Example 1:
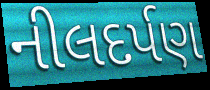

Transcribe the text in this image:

નીલદર્પણ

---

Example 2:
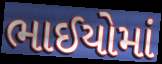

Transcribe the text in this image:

ભાઈયોમાં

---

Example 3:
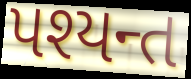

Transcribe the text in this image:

પશ્યન્ત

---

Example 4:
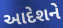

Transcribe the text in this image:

આદેશને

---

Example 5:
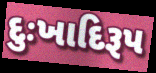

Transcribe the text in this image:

દુઃખાદિરૂપ